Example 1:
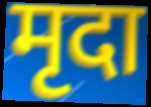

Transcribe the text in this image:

मृदा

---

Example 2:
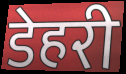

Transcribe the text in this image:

डेहरी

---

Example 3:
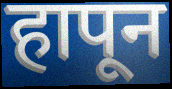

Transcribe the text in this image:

हापून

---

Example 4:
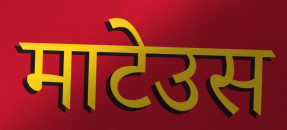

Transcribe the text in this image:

माटेउस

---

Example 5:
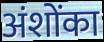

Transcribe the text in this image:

अंशोंका